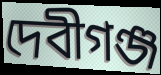
দেবীগঞ্জ